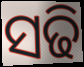
ସଢି